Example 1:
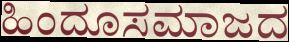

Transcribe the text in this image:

ಹಿಂದೂಸಮಾಜದ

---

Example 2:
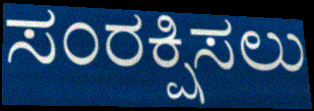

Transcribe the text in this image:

ಸಂರಕ್ಷಿಸಲು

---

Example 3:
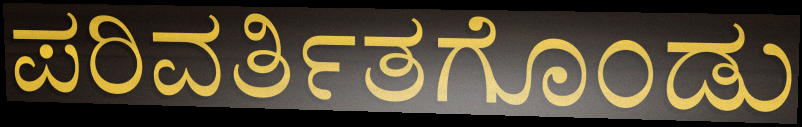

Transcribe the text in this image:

ಪರಿವರ್ತಿತಗೊಂಡು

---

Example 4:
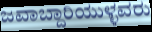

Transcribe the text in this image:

ಜವಾಬ್ದಾರಿಯುಳ್ಳವರು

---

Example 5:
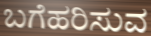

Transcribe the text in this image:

ಬಗೆಹರಿಸುವ